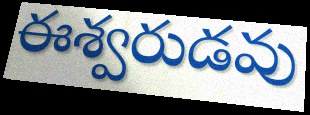
ఈశ్వరుడవు